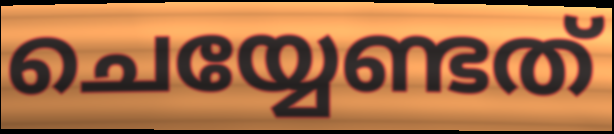
ചെയ്യേണ്ടത്